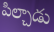
పిల్చాడు